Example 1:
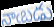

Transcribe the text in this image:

నాఁబడు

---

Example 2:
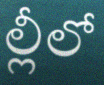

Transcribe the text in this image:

ల్లీలో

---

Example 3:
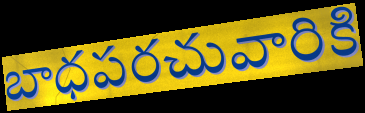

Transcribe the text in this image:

బాధపరచువారికి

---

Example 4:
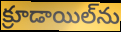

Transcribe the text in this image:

క్రూడాయిల్‌ను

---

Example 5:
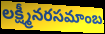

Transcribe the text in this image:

లక్ష్మీనరసమాంబ